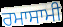
ਰਮਾਸਾਮੀ